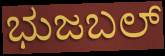
ಭುಜಬಲ್